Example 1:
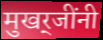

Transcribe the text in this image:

मुखर्जींनी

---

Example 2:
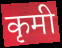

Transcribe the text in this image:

कृमी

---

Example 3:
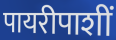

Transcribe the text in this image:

पायरीपाशीं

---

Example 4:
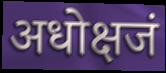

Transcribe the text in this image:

अधोक्षजं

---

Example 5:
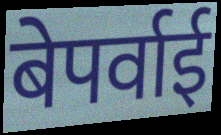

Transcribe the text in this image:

बेपर्वाई